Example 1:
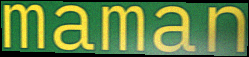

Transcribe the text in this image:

maman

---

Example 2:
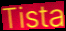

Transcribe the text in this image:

Tista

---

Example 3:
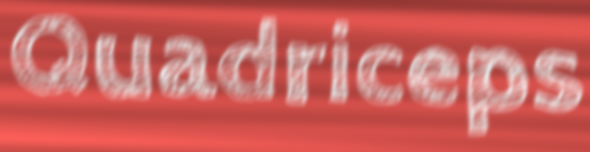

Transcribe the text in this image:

Quadriceps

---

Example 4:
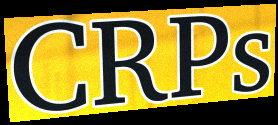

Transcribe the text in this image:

CRPs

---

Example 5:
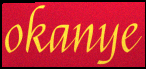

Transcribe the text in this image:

okanye